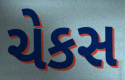
ચેકસ